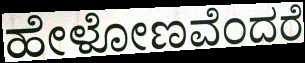
ಹೇಳೋಣವೆಂದರೆ